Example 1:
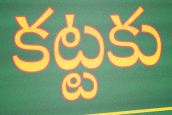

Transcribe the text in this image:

కట్టకు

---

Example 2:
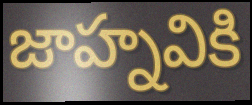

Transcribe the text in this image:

జాహ్నవికి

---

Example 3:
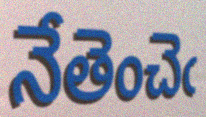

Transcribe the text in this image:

నేతెంచెఁ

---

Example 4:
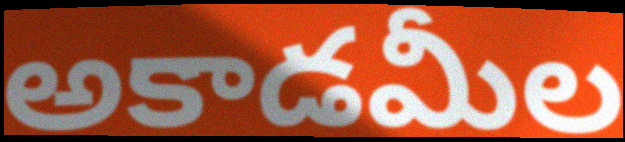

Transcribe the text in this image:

అకాడమీల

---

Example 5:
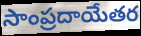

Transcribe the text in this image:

సాంప్రదాయేతర